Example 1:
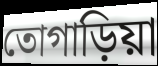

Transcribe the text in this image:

তোগাড়িয়া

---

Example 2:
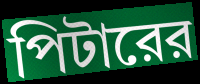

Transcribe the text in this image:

পিটারের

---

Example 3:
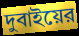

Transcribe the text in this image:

দুবাইয়ের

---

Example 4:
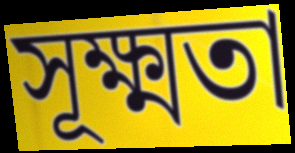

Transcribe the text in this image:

সূক্ষ্মতা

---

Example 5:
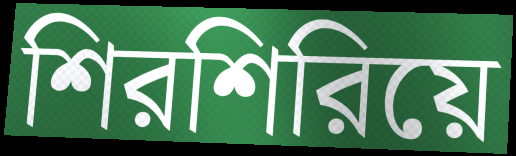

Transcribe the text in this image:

শিরশিরিয়ে